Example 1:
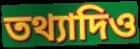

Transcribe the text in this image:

তথ্যাদিও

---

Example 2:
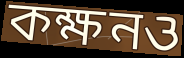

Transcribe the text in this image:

কক্ষনও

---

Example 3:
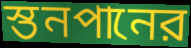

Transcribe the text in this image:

স্তনপানের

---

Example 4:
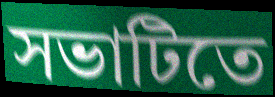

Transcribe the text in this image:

সভাটিতে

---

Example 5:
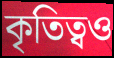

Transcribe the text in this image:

কৃতিত্বও